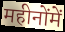
महीनोंमें